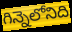
గిన్నెలోనిది